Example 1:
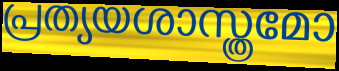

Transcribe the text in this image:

പ്രത്യയശാസ്ത്രമോ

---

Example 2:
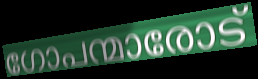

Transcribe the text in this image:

ഗോപന്മാരോട്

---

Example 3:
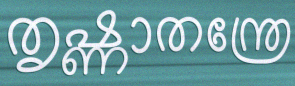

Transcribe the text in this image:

തൃഷ്ണാതന്ത്രേ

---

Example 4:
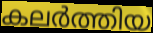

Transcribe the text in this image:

കലർത്തിയ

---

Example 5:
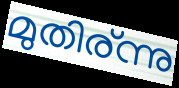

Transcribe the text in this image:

മുതിര്ന്നു